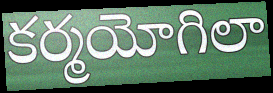
కర్మయోగిలా